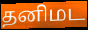
தனிமட